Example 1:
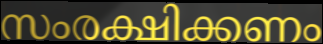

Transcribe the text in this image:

സംരക്ഷിക്കണം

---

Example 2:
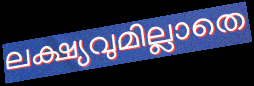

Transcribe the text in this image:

ലക്ഷ്യവുമില്ലാതെ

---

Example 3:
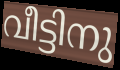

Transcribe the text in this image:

വീട്ടിനു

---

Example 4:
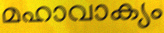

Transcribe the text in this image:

മഹാവാക്യം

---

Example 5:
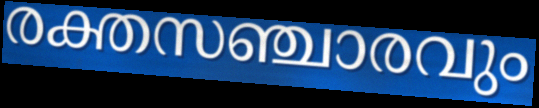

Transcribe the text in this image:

രക്തസഞ്ചാരവും